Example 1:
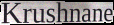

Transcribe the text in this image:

Krushnane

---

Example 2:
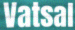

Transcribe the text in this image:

Vatsal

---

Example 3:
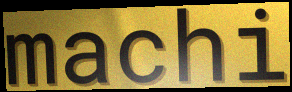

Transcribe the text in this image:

machi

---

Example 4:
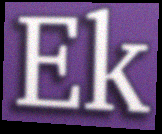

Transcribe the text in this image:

Ek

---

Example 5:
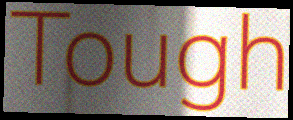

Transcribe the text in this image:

Tough